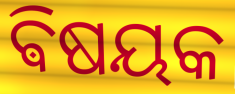
ଵିଷୟକ